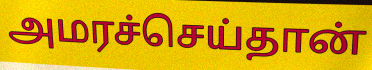
அமரச்செய்தான்